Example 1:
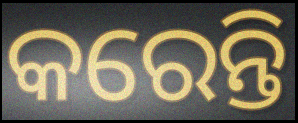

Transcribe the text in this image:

କରେନ୍ତି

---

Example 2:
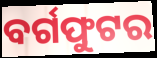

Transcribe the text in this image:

ବର୍ଗଫୁଟର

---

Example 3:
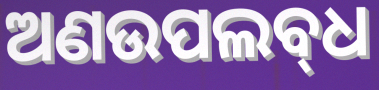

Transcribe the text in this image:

ଅଣଉପଲବ୍‌ଧ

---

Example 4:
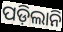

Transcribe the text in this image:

ପଡ଼ିଲାନି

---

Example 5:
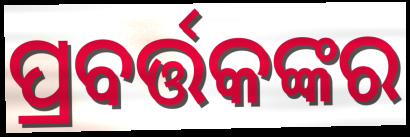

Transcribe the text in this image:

ପ୍ରବର୍ତ୍ତକଙ୍କର